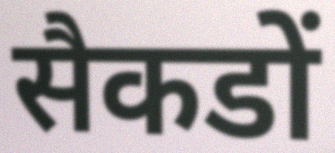
सैकडों